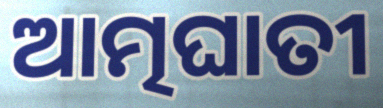
ଆତ୍ମଘାତୀ